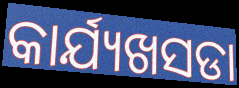
କାର୍ଯ୍ୟଖସଡା